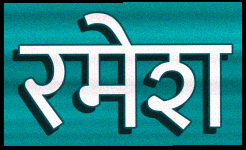
रमेश